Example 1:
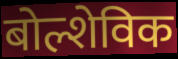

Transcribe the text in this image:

बोल्शेविक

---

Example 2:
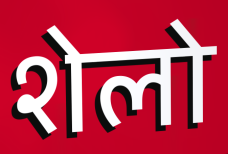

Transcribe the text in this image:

शेलो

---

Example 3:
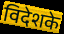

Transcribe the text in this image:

विदेशके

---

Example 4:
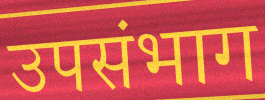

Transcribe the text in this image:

उपसंभाग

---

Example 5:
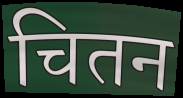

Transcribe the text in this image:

चितन